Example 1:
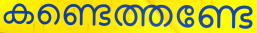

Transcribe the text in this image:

കണ്ടെത്തണ്ടേ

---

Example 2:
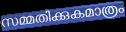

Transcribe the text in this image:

സമ്മതിക്കുകമാത്രം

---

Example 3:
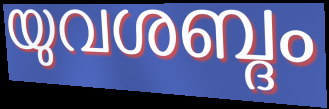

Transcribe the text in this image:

യുവശബ്ദം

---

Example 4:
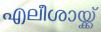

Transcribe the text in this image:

എലീശായ്ക്ക്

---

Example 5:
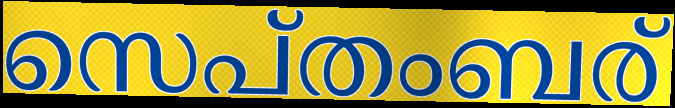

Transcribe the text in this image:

സെപ്തംബര്